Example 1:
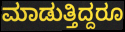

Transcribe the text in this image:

ಮಾಡುತ್ತಿದ್ದರೂ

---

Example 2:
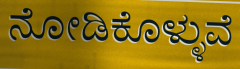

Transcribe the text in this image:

ನೋಡಿಕೊಳ್ಳುವೆ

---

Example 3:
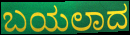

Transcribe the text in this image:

ಬಯಲಾದ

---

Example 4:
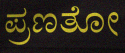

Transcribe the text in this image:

ಪ್ರಣತೋ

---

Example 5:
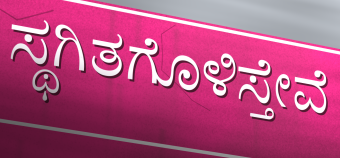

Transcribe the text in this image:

ಸ್ಥಗಿತಗೊಳಿಸ್ತೇವೆ